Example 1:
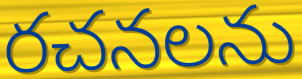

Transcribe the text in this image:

రచనలను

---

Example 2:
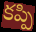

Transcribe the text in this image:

కప్పి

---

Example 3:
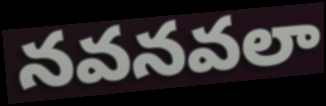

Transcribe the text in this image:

నవనవలా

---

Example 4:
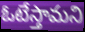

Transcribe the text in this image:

ఓటేస్తామని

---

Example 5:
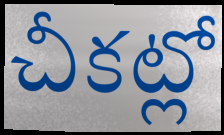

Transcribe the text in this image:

చీకట్లో